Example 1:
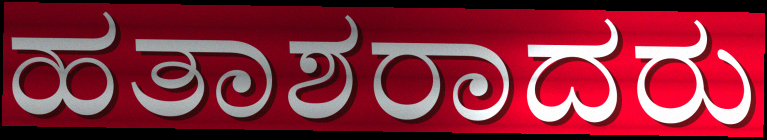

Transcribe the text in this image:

ಹತಾಶರಾದರು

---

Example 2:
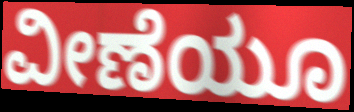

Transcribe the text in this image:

ವೀಣೆಯೂ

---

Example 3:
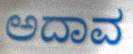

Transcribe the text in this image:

ಅದಾವ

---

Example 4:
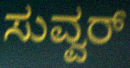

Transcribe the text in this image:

ಸುವ್ವರ್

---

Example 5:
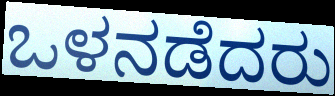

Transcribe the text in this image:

ಒಳನಡೆದರು